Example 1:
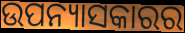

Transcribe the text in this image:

ଉପନ୍ୟାସକାରର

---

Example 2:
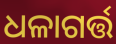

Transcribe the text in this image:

ଧଳାଗର୍ତ୍ତ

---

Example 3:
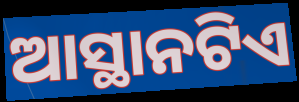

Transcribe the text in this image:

ଆସ୍ଥାନଟିଏ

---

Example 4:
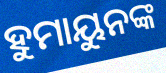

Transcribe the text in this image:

ହୁମାୟୁନଙ୍କ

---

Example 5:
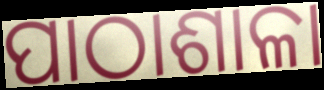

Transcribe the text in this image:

ପାଠାଶାଳା